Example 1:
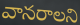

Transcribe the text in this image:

వానరాలని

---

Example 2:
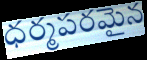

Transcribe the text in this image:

ధర్మపరమైన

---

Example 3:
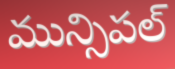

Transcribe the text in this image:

మున్సిపల్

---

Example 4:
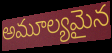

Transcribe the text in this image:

అమూల్యమైన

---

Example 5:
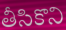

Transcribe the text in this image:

తీసికొని